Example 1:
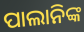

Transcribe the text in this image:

ପାଲାନିଙ୍କ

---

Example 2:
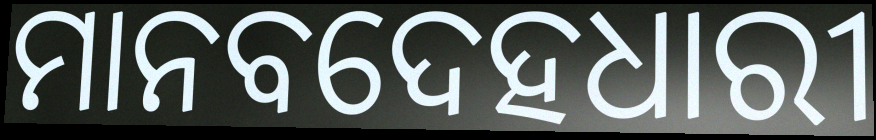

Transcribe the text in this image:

ମାନବଦେହଧାରୀ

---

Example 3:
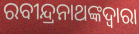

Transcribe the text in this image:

ରବୀନ୍ଦ୍ରନାଥଙ୍କଦ୍ୱାରା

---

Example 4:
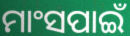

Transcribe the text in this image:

ମାଂସପାଇଁ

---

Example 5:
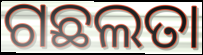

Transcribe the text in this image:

ଗଛଲତା